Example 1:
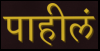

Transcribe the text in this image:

पाहीलं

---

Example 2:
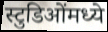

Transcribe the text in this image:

स्टुडिओंमध्ये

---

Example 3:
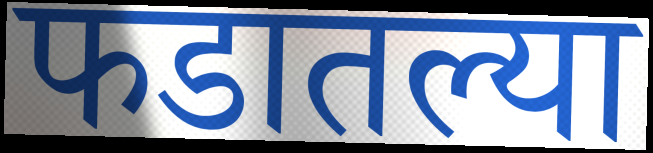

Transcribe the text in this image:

फडातल्या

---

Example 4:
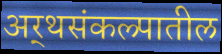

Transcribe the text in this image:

अर्थसंकल्पातील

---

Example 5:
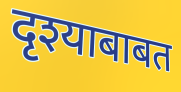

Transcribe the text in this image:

दृश्याबाबत